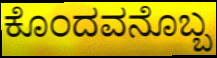
ಕೊಂದವನೊಬ್ಬ